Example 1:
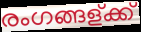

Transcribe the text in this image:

രംഗങ്ങള്ക്ക്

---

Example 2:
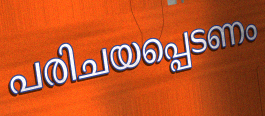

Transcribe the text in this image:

പരിചയപ്പെടണം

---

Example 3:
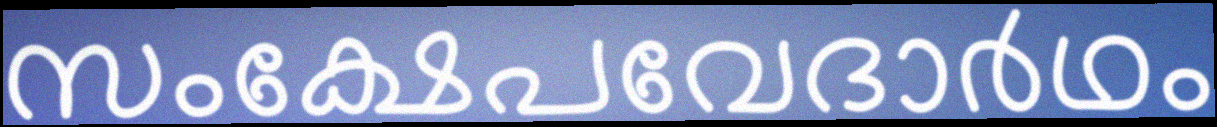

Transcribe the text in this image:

സംക്ഷേപവേദാർഥം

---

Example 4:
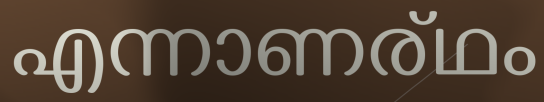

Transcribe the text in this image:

എന്നാണര്ഥം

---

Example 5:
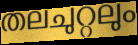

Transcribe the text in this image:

തലചുറ്റലും